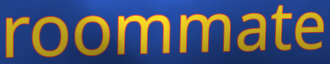
roommate